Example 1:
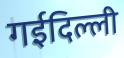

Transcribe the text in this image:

गईदिल्ली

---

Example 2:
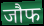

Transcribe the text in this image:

जौफ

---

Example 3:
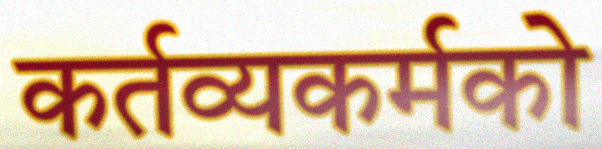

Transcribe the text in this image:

कर्तव्यकर्मको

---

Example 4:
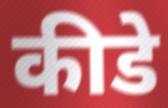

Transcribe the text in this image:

कीडे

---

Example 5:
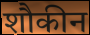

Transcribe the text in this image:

शौकीन